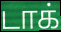
டாக்